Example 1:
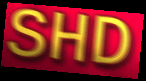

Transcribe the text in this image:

SHD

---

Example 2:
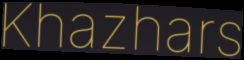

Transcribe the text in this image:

Khazhars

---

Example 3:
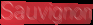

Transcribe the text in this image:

Sauvignon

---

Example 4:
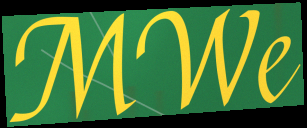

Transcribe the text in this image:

MWe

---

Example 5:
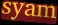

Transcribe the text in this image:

syam